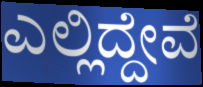
ಎಲ್ಲಿದ್ದೇವೆ